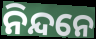
ନିନ୍ଦନେ